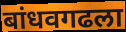
बांधवगढला